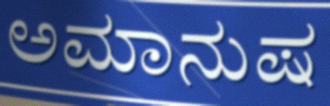
ಅಮಾನುಷ